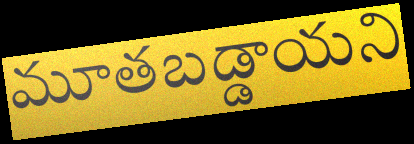
మూతబడ్డాయని